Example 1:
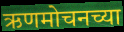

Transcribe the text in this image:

ऋणमोचनच्या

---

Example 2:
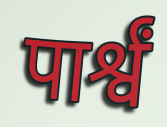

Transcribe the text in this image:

पार्श्वं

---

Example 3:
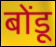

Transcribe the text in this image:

बोंडू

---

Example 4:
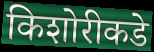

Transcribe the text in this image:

किशोरीकडे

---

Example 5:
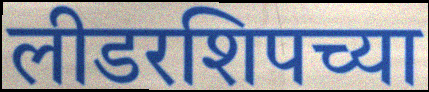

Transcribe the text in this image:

लीडरशिपच्या